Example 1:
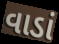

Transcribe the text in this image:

વાડાં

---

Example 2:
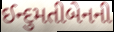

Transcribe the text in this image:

ઈન્દુમતીબેનની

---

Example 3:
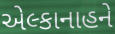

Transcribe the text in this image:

એલ્કાનાહને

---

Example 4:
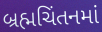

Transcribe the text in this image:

બ્રહ્મચિંતનમાં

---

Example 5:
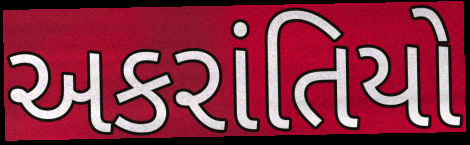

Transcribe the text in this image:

અકરાંતિયો